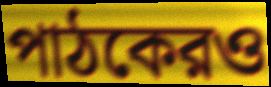
পাঠকেরও